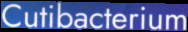
Cutibacterium